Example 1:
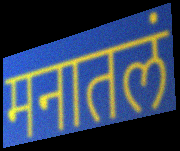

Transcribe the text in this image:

मनातलं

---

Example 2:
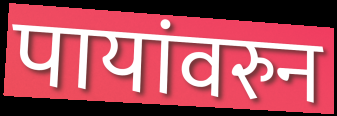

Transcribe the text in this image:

पायांवरुन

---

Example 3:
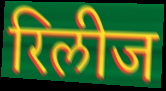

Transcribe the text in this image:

रिलीज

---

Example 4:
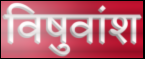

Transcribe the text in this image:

विषुवांश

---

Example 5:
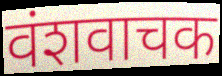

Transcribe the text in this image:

वंशवाचक